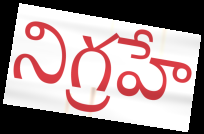
నిగ్రహే